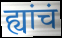
ह्यांचं